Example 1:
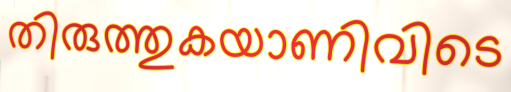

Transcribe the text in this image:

തിരുത്തുകയാണിവിടെ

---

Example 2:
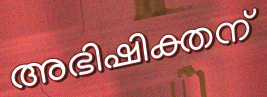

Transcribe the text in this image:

അഭിഷിക്തന്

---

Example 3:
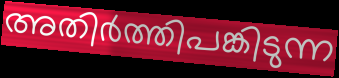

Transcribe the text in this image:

അതിർത്തിപങ്കിടുന്ന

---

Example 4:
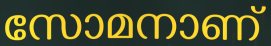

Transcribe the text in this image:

സോമനാണ്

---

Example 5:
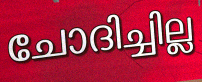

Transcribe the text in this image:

ചോദിച്ചില്ല